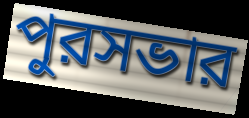
পুরসভার